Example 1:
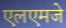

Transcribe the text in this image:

एलएमजे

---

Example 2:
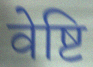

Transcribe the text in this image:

वेष्टि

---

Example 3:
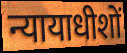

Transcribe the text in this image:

न्यायाधीशों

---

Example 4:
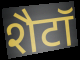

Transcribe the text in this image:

शैटॉ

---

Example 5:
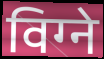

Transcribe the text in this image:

विग्ने